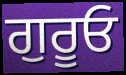
ਗੁਰੂਓ